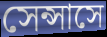
সেন্সাসে